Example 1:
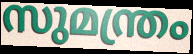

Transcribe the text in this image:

സുമന്ത്രം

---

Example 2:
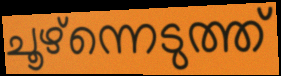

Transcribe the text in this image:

ചൂഴ്ന്നെടുത്ത്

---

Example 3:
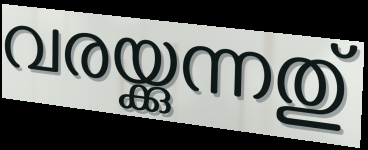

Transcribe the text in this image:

വരയ്ക്കുന്നതു്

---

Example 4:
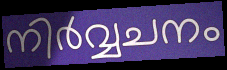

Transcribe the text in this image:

നിർവ്വചനം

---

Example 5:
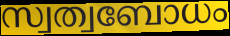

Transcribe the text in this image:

സ്വത്വബോധം